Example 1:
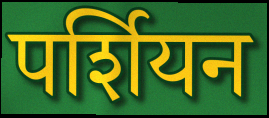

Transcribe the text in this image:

पर्शियन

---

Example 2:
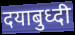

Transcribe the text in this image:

दयाबुध्दी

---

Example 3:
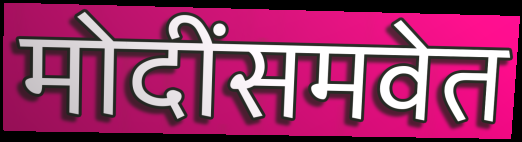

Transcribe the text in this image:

मोदींसमवेत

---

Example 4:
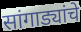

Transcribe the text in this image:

सांगाड्यांचे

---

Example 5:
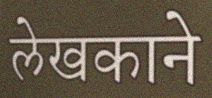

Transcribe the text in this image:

लेखकाने